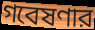
গবেষণার